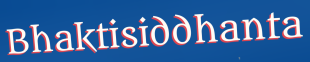
Bhaktisiddhanta